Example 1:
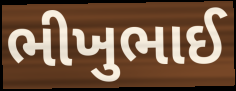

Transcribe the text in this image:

ભીખુભાઈ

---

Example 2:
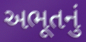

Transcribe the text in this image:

અભૂતનું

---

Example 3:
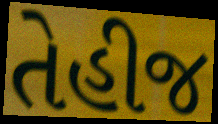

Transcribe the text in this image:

તેહીજ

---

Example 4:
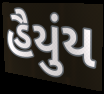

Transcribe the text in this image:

હૈયુંય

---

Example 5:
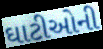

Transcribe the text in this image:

ઘાટીઓની